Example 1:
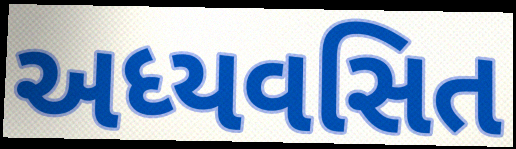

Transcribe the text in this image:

અધ્યવસિત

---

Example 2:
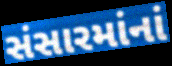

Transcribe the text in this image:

સંસારમાંનાં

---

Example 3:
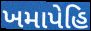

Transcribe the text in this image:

ખમાપેહિ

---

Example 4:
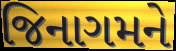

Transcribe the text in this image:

જિનાગમને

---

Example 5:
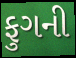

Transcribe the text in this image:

ફુગની